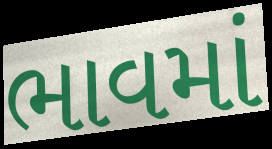
ભાવમાં